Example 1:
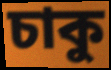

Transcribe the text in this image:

চাকু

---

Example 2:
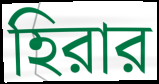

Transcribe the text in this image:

হিরার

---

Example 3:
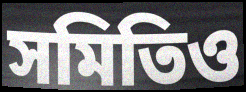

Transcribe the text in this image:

সমিতিও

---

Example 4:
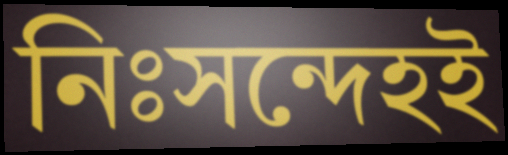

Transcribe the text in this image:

নিঃসন্দেহই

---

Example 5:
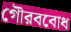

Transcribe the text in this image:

গৌরববোধ